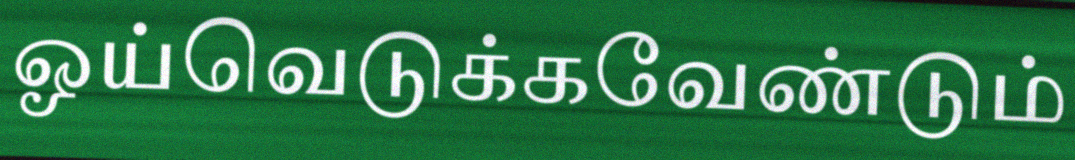
ஓய்வெடுக்கவேண்டும்